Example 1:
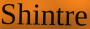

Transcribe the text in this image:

Shintre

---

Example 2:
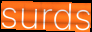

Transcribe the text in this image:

surds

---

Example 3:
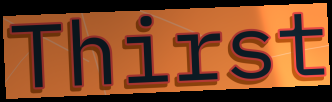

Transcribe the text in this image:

Thirst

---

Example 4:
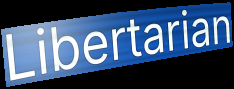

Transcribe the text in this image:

Libertarian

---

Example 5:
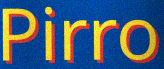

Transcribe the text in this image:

Pirro